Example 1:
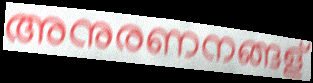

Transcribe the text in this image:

അനുരണനങ്ങള്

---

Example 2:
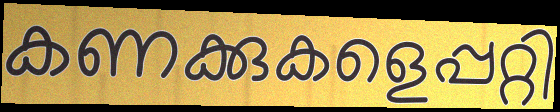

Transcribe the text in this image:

കണക്കുകളെപ്പറ്റി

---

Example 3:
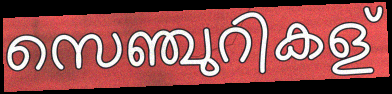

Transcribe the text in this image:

സെഞ്ചുറികള്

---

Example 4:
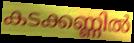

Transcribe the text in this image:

കടക്കണ്ണിൽ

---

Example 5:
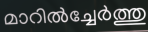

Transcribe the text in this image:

മാറിൽച്ചേർത്തു